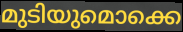
മുടിയുമൊക്കെ